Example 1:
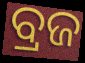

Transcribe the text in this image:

ବ୍ରଜ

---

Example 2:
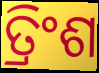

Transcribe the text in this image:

ତ୍ରିଂଶ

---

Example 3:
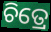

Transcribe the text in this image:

ଚିତ୍ରେ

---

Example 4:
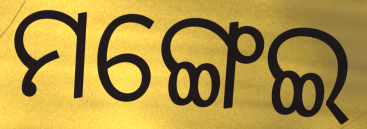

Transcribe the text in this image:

ମଙ୍ଗେଇ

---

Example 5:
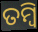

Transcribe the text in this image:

ତମ୍ବି